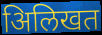
अिलिखत